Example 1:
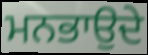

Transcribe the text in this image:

ਮਨਭਾਉਦੇ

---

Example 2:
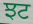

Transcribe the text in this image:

ਝਟ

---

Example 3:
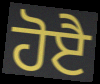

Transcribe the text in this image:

ਹੋੲੈ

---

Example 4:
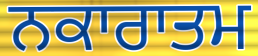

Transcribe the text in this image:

ਨਕਾਰਾਤਮ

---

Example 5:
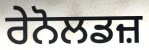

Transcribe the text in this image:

ਰੇਨੋਲਡਜ਼